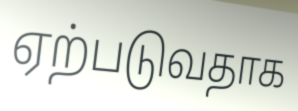
ஏற்படுவதாக